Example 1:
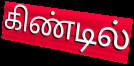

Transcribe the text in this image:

கிண்டில்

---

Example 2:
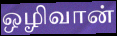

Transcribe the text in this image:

ஒழிவான்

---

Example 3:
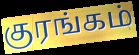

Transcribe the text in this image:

குரங்கம்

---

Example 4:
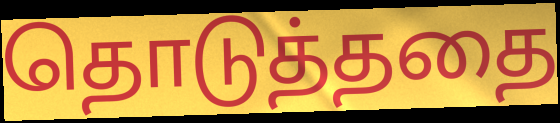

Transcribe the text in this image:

தொடுத்ததை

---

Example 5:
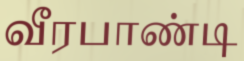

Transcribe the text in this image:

வீரபாண்டி